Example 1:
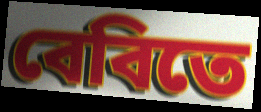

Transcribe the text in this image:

বেবিতে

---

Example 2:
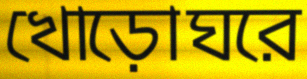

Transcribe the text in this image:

খোড়োঘরে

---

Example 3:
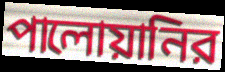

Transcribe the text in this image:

পালোয়ানির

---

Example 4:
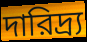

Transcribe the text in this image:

দারিদ্র্য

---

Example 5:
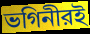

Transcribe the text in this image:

ভগিনীরই